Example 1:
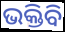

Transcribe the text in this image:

ଭକ୍ତିବି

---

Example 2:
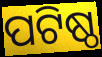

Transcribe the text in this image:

ପଟିଷ୍ଠ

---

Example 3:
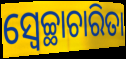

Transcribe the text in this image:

ସ୍ୱେଚ୍ଛାଚାରିତା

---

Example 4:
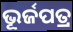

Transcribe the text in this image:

ଭୂର୍ଜପତ୍ର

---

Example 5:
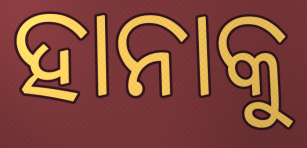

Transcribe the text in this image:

ହାନାକୁ